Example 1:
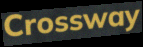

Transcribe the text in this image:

Crossway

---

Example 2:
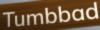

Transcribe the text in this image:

Tumbbad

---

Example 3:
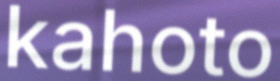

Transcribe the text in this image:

kahoto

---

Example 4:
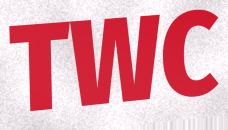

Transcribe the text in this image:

TWC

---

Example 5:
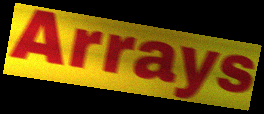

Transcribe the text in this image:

Arrays